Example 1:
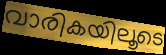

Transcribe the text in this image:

വാരികയിലൂടെ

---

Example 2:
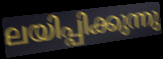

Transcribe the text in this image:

ലയിപ്പിക്കുന്നു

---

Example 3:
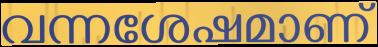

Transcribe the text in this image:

വന്നശേഷമാണ്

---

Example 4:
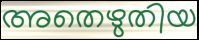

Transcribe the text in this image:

അതെഴുതിയ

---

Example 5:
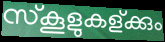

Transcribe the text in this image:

സ്കൂളുകള്ക്കും